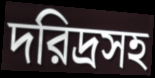
দরিদ্রসহ